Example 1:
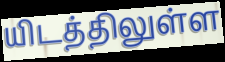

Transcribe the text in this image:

யிடத்திலுள்ள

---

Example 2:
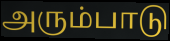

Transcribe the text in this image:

அரும்பாடு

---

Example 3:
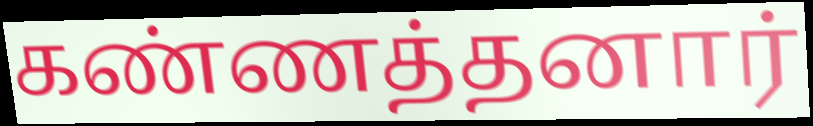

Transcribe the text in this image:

கண்ணத்தனார்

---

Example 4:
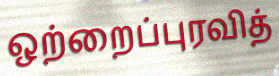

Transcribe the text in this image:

ஒற்றைப்புரவித்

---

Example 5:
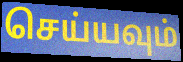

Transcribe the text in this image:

செய்யவும்